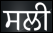
ਸਲੀ